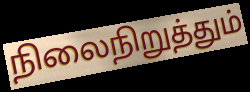
நிலைநிறுத்தும்